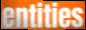
entities